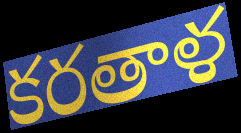
కరతాళ